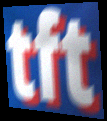
tft